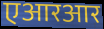
एआरआर